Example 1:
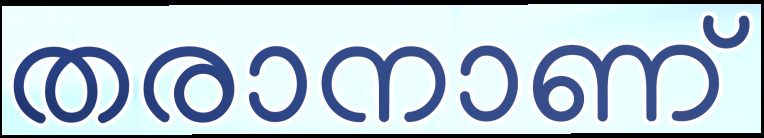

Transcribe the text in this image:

തരാനാണ്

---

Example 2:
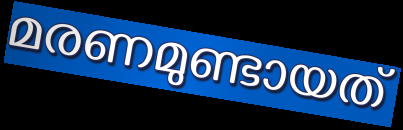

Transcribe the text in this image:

മരണമുണ്ടായത്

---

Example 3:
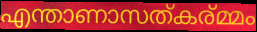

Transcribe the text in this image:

എന്താണാസത്കര്മ്മം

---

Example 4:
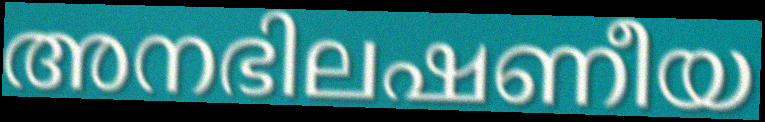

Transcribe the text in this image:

അനഭിലഷണീയ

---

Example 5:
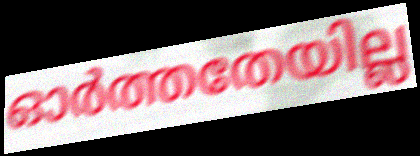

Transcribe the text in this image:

ഓർത്തതേയില്ല